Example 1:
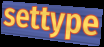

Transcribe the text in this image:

settype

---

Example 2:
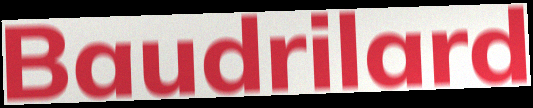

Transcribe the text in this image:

Baudrilard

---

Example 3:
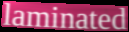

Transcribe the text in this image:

laminated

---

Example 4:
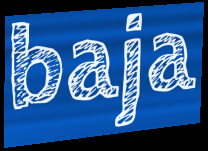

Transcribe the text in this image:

baja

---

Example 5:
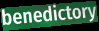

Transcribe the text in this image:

benedictory